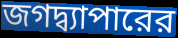
জগদ্ব্যাপারের